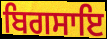
ਬਿਗਸਾਇ